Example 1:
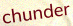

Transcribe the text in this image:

chunder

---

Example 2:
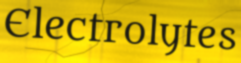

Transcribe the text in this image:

Electrolytes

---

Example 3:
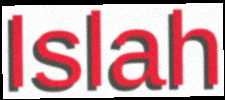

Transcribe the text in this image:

Islah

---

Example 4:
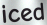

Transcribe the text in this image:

iced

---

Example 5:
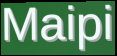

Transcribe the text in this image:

Maipi